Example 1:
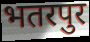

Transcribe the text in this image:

भतरपुर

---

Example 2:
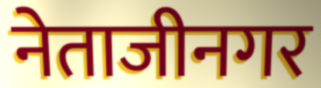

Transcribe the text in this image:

नेताजीनगर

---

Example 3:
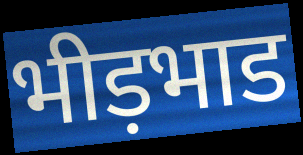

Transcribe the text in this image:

भीड़भाड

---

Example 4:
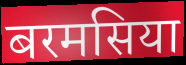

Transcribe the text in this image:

बरमसिया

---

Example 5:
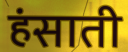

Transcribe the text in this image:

हंसाती